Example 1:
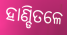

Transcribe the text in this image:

ହାଣ୍ଡିତଳେ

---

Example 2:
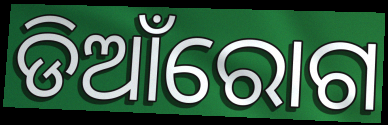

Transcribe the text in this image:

ଡିଆଁରୋଗ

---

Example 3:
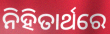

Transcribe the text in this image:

ନିହିତାର୍ଥରେ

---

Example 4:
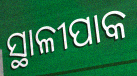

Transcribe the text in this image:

ସ୍ଥାଳୀପାକ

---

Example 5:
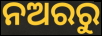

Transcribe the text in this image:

ନଅରରୁ